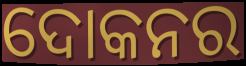
ଦୋକନର